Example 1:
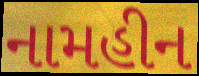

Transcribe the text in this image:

નામહીન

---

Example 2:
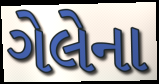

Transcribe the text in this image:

ગેલેના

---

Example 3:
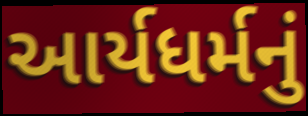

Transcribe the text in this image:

આર્યધર્મનું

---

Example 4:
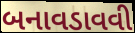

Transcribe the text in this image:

બનાવડાવવી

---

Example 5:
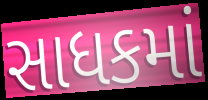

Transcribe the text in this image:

સાધકમાં